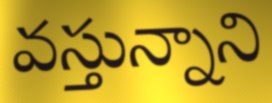
వస్తున్నాని